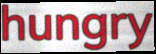
hungry